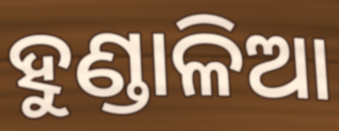
ହୁଣ୍ଡାଳିଆ